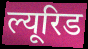
ल्यूरिड